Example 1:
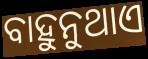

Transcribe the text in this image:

ବାହୁନୁଥାଏ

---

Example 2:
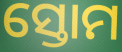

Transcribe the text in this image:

ସ୍ତୋମ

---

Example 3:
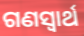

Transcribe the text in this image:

ଗଣସ୍ୱାର୍ଥ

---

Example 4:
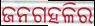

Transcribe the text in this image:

ଜନଗହଳିର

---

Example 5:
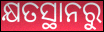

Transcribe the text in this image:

କ୍ଷତସ୍ଥାନରୁ